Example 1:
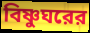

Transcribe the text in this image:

বিষ্ণুঘরের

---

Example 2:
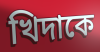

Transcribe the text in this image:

খিদাকে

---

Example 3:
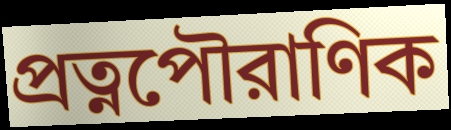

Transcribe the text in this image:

প্রত্নপৌরাণিক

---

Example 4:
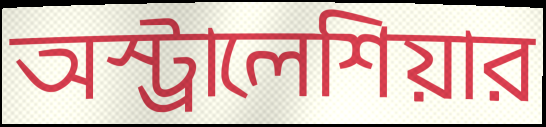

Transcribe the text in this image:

অস্ট্রালেশিয়ার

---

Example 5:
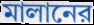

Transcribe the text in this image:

মালানের